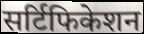
सर्टिफिकेशन